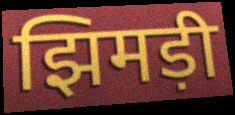
झिमड़ी